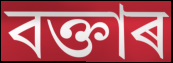
বক্তাৰ